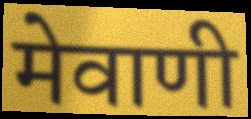
मेवाणी